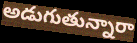
అడుగుతున్నారా